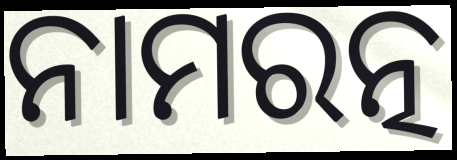
ନାମରତ୍ନ